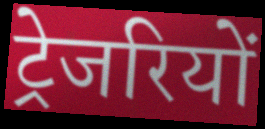
ट्रेजरियों